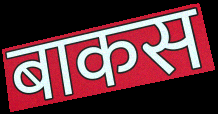
बाकस